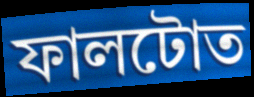
ফালটোত